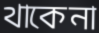
থাকেনা